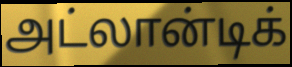
அட்லான்டிக்